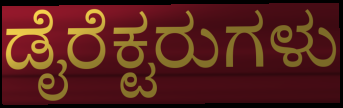
ಡೈರೆಕ್ಟರುಗಳು